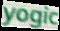
yogic